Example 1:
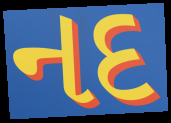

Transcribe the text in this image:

નદ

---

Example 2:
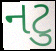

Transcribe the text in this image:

નટુ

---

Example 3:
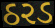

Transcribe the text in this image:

ઠરડ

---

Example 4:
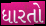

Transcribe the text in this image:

ધારતો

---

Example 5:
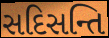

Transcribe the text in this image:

સદિસન્તિ